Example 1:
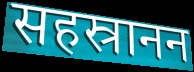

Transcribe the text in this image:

सहस्रानन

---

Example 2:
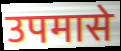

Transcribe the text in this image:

उपमासे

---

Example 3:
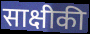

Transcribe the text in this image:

साक्षीकी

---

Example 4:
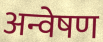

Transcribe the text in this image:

अन्वेषण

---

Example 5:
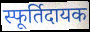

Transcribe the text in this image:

स्फूर्तिदायक